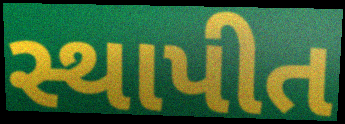
સ્થાપીત